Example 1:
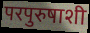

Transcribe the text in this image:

परपुरुषाशी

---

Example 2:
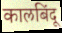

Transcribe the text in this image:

कालबिंदू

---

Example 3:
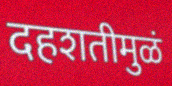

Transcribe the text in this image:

दहशतीमुळं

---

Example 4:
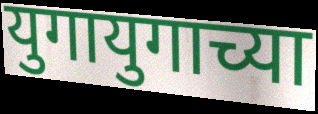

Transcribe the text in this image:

युगायुगाच्या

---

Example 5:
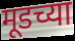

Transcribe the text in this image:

मूडच्या